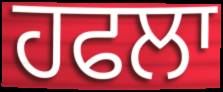
ਹਫਲਾ